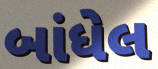
બાંધેલ